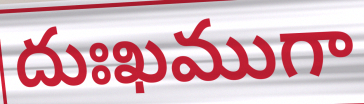
దుఃఖముగా